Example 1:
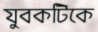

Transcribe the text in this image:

যুবকটিকে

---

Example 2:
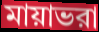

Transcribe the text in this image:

মায়াভরা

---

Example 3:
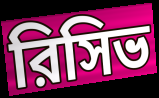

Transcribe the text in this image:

রিসিভ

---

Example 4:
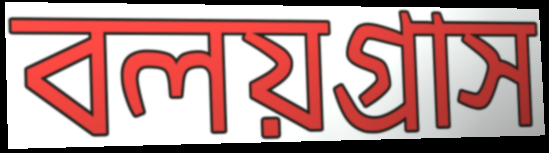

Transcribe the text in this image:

বলয়গ্রাস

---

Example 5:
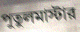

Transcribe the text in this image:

পুতুলমাস্টার